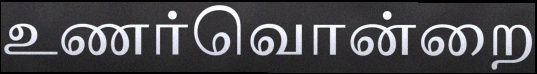
உணர்வொன்றை